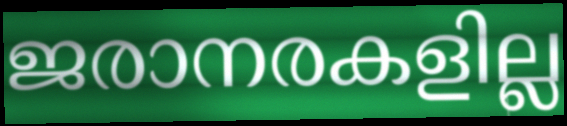
ജരാനരകളില്ല